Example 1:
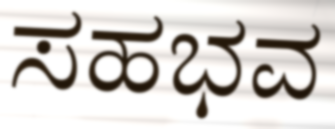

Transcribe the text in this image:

ಸಹಭವ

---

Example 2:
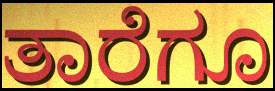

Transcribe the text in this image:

ತಾರೆಗೂ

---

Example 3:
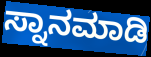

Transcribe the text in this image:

ಸ್ನಾನಮಾಡಿ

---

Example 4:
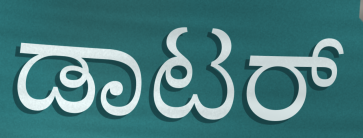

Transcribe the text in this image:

ಡಾಟರ್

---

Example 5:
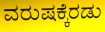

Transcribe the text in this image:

ವರುಷಕ್ಕೆರಡು